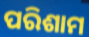
ପରିଶାମ